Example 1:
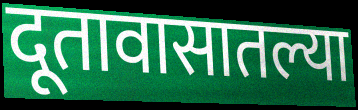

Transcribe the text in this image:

दूतावासातल्या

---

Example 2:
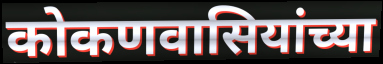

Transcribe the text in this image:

कोकणवासियांच्या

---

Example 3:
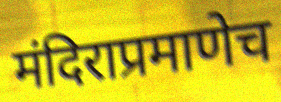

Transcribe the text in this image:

मंदिराप्रमाणेच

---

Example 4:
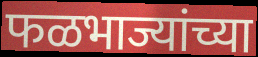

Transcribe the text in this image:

फळभाज्यांच्या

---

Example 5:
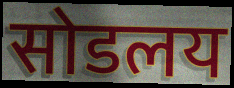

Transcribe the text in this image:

सोडलय